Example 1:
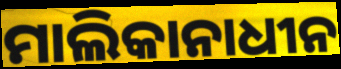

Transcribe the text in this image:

ମାଲିକାନାଧୀନ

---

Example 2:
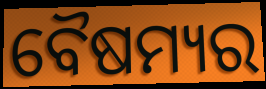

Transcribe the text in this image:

ବୈଷମ୍ଯର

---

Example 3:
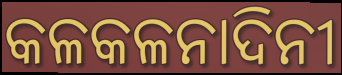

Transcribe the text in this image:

କଳକଳନାଦିନୀ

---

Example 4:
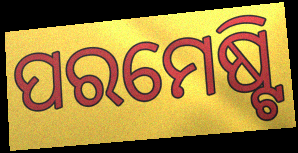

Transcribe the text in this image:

ପରମେଷ୍ଟି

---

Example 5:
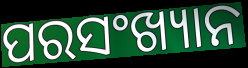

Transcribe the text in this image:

ପରସଂଖ୍ୟାନ